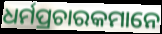
ଧର୍ମପ୍ରଚାରକମାନେ